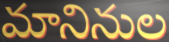
మానినుల